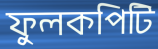
ফুলকপিটি